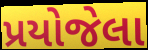
પ્રયોજેલા